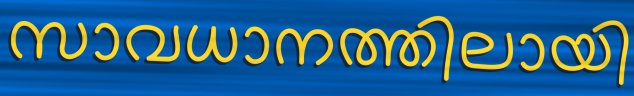
സാവധാനത്തിലായി